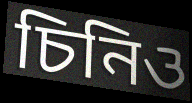
চিনিও